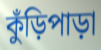
কুঁড়িপাড়া